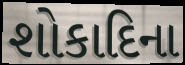
શોકાદિના